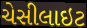
ચેસીલાઇટ